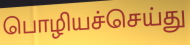
பொழியச்செய்து